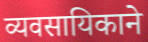
व्यवसायिकाने